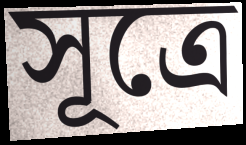
সূত্ৰে